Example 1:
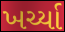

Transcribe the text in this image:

ખર્ચ્યા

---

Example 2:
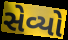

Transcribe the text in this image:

સેવ્યો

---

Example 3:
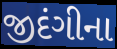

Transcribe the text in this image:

જીદંગીના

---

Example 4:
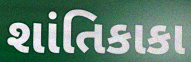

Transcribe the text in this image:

શાંતિકાકા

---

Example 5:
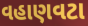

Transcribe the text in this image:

વહાણવટા